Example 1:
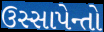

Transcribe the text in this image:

ઉસ્સાપેન્તો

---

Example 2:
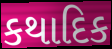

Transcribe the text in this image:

કથાદિક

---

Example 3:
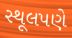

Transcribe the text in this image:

સ્થૂલપણે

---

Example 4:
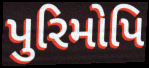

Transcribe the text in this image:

પુરિમોપિ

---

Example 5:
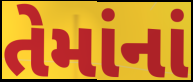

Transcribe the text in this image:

તેમાંનાં